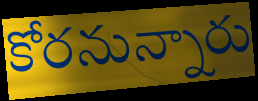
కోరనున్నారు